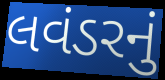
લવંડરનું